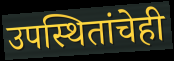
उपस्थितांचेही